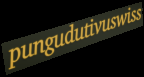
pungudutivuswiss